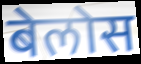
बेलोस